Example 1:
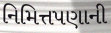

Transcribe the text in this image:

નિમિત્તપણાની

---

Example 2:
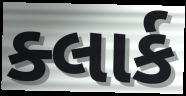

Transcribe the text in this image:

ક્લાર્ક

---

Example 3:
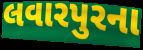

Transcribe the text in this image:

લવારપુરના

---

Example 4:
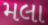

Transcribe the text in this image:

મલા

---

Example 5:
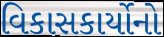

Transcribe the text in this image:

વિકાસકાર્યોનો